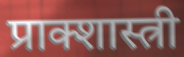
प्राक्शास्त्री